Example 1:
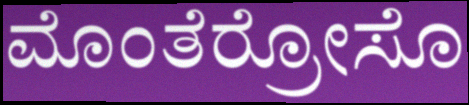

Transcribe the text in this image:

ಮೊಂತೆರ್ರೋಸೊ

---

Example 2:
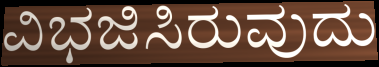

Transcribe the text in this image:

ವಿಭಜಿಸಿರುವುದು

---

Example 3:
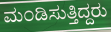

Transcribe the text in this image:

ಮಂಡಿಸುತ್ತಿದ್ದರು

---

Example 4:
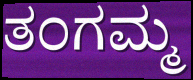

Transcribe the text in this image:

ತಂಗಮ್ಮ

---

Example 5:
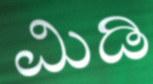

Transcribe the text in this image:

ಮಿಡಿ